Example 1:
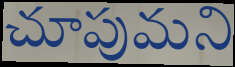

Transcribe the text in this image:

చూపుమని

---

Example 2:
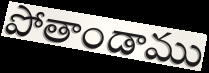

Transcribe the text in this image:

పోతాండాము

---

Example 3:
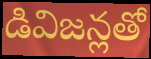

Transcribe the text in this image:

డివిజన్లతో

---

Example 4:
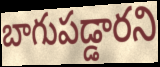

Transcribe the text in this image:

బాగుపడ్డారని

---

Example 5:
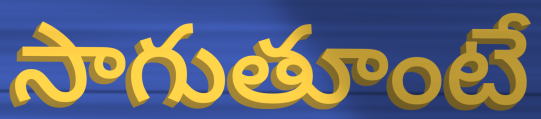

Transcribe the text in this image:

సాగుతూంటే